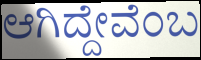
ಆಗಿದ್ದೇವೆಂಬ